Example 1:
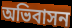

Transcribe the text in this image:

অভিবাসন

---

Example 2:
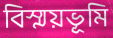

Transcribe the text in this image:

বিস্ময়ভূমি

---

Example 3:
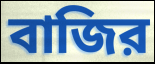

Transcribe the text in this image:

বাজির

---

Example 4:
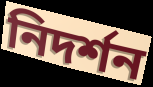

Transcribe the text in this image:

নিদর্শন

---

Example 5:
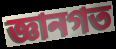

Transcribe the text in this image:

জ্ঞানগত